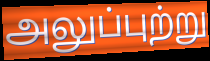
அலுப்புற்று